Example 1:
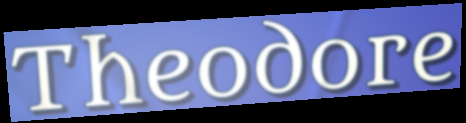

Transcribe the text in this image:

Theodore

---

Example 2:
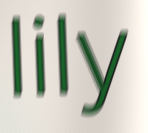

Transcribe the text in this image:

lily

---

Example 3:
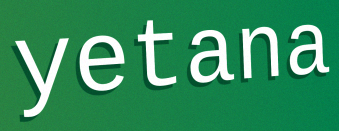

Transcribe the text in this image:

yetana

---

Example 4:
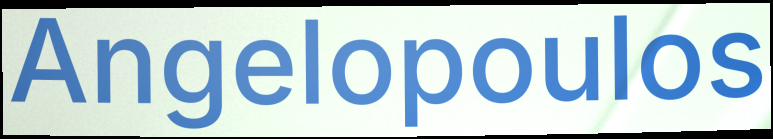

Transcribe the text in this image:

Angelopoulos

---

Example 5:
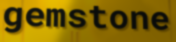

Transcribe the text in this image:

gemstone